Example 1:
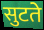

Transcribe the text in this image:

सुटते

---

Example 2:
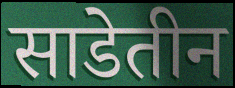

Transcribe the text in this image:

साडेतीन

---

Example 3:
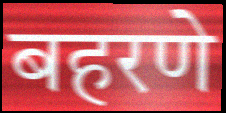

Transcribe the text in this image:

बहरणे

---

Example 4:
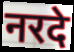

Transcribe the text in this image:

नरदे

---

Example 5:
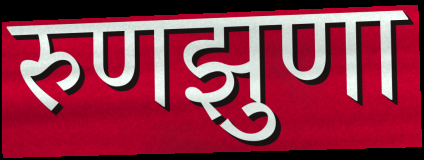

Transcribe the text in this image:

रुणझुणा